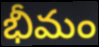
భీమం